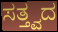
ಸತ್ತ್ವದ